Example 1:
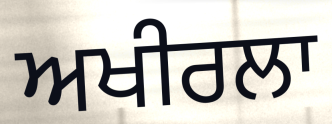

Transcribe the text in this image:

ਅਖੀਰਲਾ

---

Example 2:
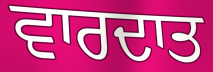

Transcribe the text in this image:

ਵਾਰਦਾਤ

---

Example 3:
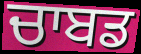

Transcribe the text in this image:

ਚਾਬਡ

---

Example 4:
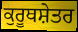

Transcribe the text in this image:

ਕੁਰੂਥਸ਼ੇਤਰ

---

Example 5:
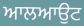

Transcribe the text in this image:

ਆਲਆਉਟ